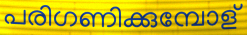
പരിഗണിക്കുമ്പോള്